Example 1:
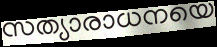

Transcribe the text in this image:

സത്യാരാധനയെ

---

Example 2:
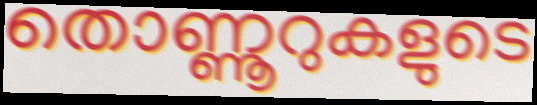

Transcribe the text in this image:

തൊണ്ണൂറുകളുടെ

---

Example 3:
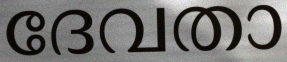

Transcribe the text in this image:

ദേവതാ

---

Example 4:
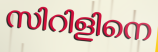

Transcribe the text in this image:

സിറിളിനെ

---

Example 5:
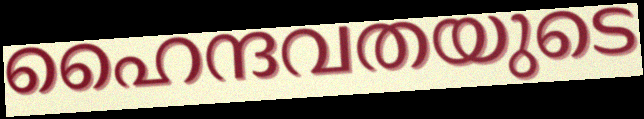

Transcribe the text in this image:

ഹൈന്ദവതയുടെ